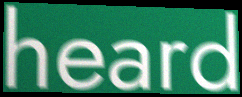
heard